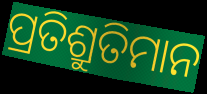
ପ୍ରତିଶ୍ରୁତିମାନ